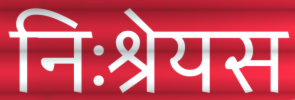
निःश्रेयस